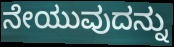
ನೇಯುವುದನ್ನು